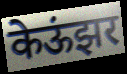
केऊंझर